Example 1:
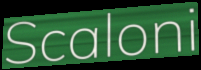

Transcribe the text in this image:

Scaloni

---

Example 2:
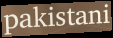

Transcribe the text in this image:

pakistani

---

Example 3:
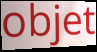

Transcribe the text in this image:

objet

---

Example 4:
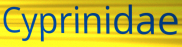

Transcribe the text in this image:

Cyprinidae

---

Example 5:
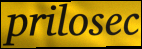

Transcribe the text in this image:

prilosec